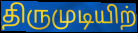
திருமுடியிற்